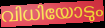
വിധിയോടും